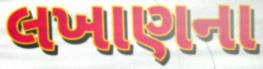
લખાણના